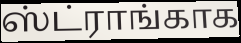
ஸ்ட்ராங்காக